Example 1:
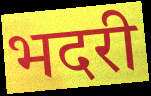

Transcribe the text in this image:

भदरी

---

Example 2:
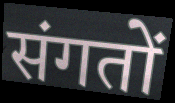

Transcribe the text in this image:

संगतों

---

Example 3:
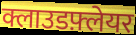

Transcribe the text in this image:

क्लाउडफ़्लेयर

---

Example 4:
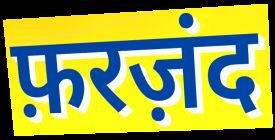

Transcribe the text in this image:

फ़रज़ंद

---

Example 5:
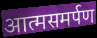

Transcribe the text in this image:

आत्मसमर्पण